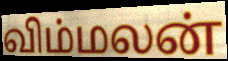
விம்மலன்